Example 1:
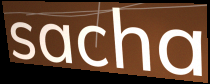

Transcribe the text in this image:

sacha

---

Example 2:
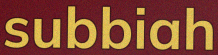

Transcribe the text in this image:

subbiah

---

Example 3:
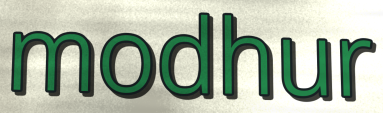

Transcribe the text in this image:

modhur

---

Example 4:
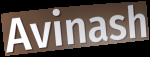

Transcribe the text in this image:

Avinash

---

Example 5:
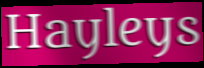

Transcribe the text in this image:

Hayleys